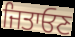
ਜਿਤਾਓਣ